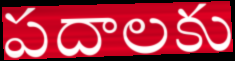
పదాలకు